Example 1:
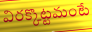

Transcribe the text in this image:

విరక్కొట్టమంటే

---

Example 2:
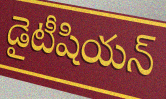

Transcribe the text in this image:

డైటీషియన్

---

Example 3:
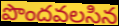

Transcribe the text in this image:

పొందవలసిన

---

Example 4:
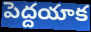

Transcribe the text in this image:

పెద్దయాక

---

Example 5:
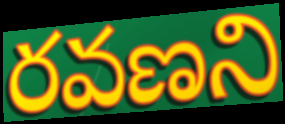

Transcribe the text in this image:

రవణని